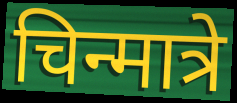
चिन्मात्रे